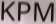
KPM